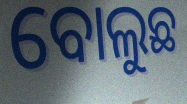
ବୋଲୁଛ